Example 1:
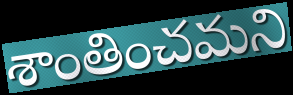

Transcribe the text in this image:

శాంతించమని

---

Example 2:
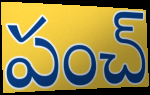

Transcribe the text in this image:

పంచ్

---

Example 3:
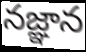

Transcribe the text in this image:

నజ్ఞాన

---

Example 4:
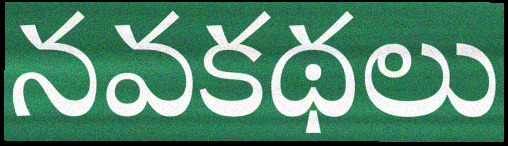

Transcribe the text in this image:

నవకథలు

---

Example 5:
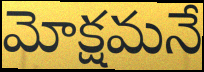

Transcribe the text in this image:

మోక్షమనే